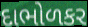
દાભોળકર